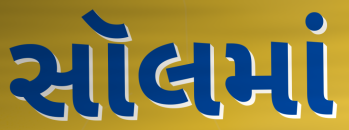
સૉલમાં